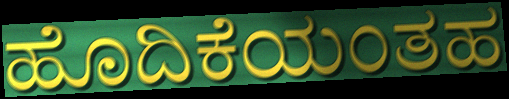
ಹೊದಿಕೆಯಂತಹ